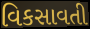
વિકસાવતી